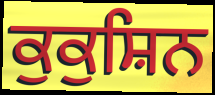
ਕੁਕੁਸ਼ਿਨ